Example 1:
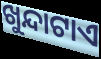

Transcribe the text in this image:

ଖୁନ୍ଦାଟାଏ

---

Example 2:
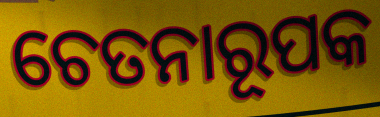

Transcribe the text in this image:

ଚେତନାରୂପକ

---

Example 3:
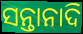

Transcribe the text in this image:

ସନ୍ତାନାଦି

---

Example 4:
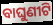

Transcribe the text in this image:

ବାଘୁଣୀଟି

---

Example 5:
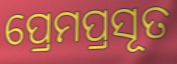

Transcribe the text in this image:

ପ୍ରେମପ୍ରସୂତ